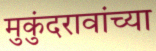
मुकुंदरावांच्या